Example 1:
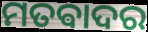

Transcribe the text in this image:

ମତଵାଦର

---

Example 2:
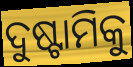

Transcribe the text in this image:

ଦୁଷ୍ଟାମିକୁ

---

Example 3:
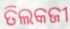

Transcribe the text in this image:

ତିଲକଜୀ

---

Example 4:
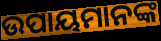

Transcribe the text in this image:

ଉପାୟମାନଙ୍କ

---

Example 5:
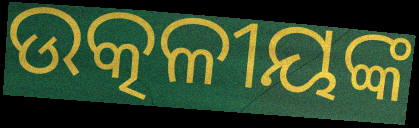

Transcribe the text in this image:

ଉତ୍କଳୀୟଙ୍କ